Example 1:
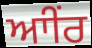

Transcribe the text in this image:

ਆੀਂਰ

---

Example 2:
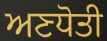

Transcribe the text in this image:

ਅਣਧੋਤੀ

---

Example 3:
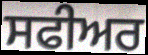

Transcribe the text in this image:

ਸਫੀਅਰ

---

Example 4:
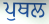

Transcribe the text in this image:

ਪੁਥਲ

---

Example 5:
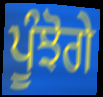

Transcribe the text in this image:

ਪੂੰਝੋਗੇ